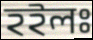
হইলঃ